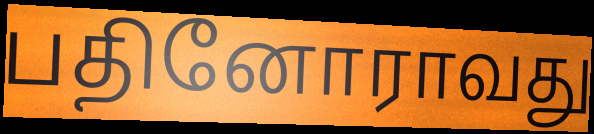
பதினோராவது